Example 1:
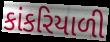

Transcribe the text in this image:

કાંકરિયાળી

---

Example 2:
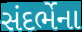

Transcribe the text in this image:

સંદર્ભેના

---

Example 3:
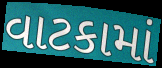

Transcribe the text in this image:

વાટકામાં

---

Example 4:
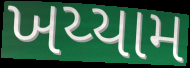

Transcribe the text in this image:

ખય્યામ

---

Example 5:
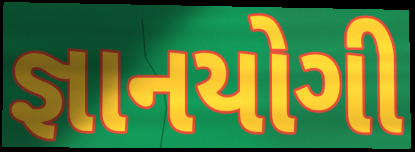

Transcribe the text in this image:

જ્ઞાનયોગી